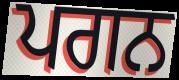
ਪਗਨ